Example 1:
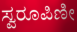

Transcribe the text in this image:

ಸ್ವರೂಪಿಣೀ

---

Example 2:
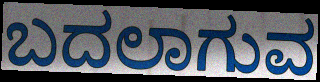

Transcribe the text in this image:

ಬದಲಾಗುವ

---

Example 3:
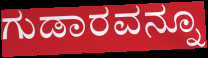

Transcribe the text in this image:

ಗುಡಾರವನ್ನೂ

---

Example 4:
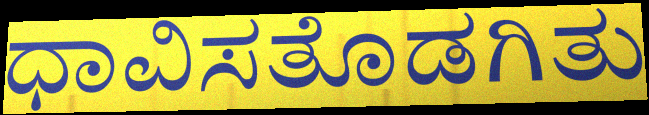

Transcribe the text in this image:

ಧಾವಿಸತೊಡಗಿತು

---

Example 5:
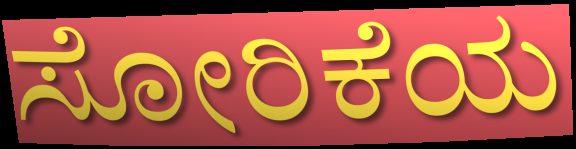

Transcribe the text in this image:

ಸೋರಿಕೆಯ